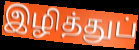
இழித்துப்